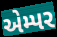
એમ્પર